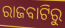
ରାଜବାଟିରୁ